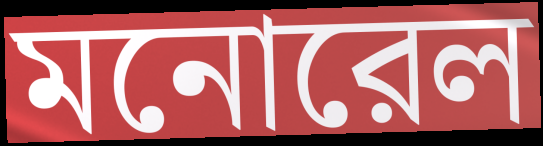
মনোরেল